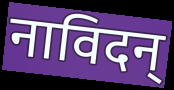
नाविदन्